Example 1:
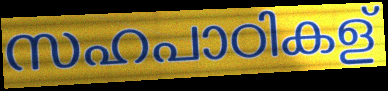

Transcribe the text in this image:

സഹപാഠികള്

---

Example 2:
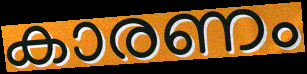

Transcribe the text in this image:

കാരണം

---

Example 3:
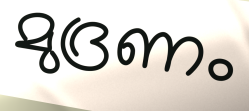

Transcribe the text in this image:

മുദ്രണം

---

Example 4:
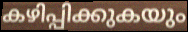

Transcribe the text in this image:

കഴിപ്പിക്കുകയും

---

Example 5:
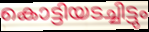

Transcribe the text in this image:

കൊട്ടിയടച്ചിട്ടും